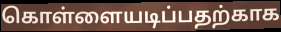
கொள்ளையடிப்பதற்காக